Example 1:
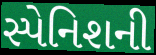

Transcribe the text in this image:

સ્પેનિશની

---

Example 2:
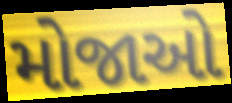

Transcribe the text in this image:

મોજાઓ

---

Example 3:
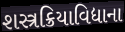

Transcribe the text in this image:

શસ્ત્રક્રિયાવિદ્યાના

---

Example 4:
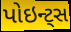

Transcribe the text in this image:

પોઇન્ટ્સ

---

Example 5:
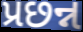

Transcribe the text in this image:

પ્રછન્ન